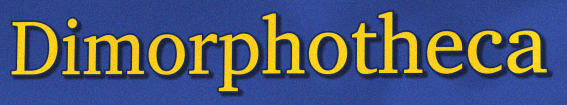
Dimorphotheca